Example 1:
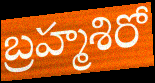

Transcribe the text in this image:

బ్రహ్మశిరో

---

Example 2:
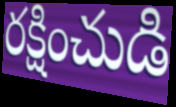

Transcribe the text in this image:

రక్షించుడి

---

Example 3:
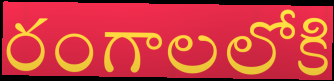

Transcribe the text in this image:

రంగాలలోకి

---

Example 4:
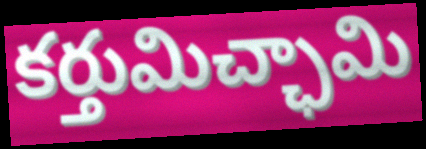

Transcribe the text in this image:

కర్తుమిచ్ఛామి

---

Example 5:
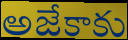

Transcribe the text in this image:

అజేకాకు